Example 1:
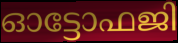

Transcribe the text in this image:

ഓട്ടോഫജി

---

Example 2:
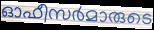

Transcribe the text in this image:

ഓഫീസർമാരുടെ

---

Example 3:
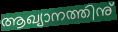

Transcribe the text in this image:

ആഖ്യാനത്തിനു്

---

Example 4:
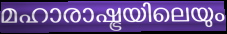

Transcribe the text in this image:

മഹാരാഷ്ട്രയിലെയും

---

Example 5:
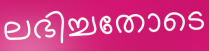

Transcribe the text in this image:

ലഭിച്ചതോടെ